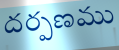
దర్పణము